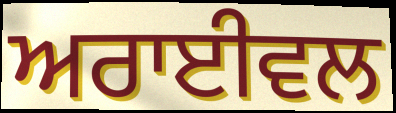
ਅਰਾਈਵਲ